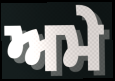
ਅਮੇ